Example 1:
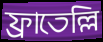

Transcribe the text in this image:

ফ্রাতেল্লি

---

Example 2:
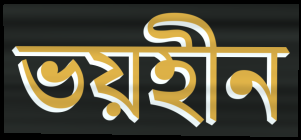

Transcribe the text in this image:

ভয়হীন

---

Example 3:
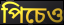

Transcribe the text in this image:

পিচেও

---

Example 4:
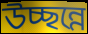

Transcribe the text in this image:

উচ্ছন্নে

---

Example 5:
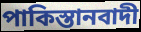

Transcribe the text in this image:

পাকিস্তানবাদী